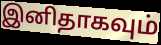
இனிதாகவும்